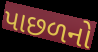
પાછળનો